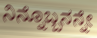
ನಿನ್ನೊಬ್ಬನನ್ನೇ